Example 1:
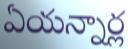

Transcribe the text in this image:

ఏయన్నార్ల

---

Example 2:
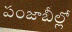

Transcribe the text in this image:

పంజాబీల్లో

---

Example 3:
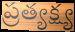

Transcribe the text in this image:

ప్రత్యక్ష్య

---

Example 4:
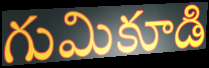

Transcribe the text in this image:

గుమికూడి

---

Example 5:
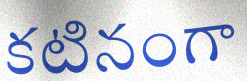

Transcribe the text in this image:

కటినంగా